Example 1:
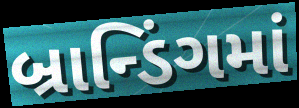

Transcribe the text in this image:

બ્રાન્ડિંગમાં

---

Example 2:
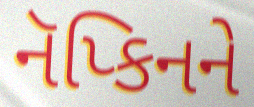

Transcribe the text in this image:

નૅપ્કિનને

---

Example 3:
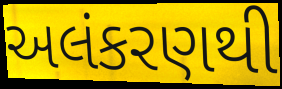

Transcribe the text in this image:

અલંકરણથી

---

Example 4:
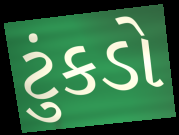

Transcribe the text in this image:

ટુંકડો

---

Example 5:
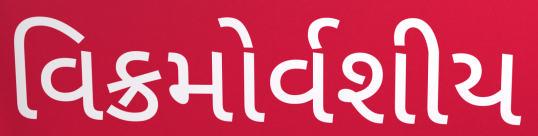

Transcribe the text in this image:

વિક્રમોર્વશીય